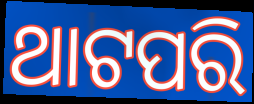
ଥାଟପରି